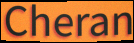
Cheran